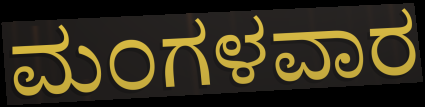
ಮಂಗಳವಾರ